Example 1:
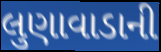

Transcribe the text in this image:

લુણાવાડાની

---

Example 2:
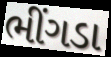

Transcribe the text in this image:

ભીંગડા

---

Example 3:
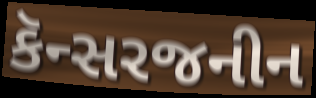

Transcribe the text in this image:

કૅન્સરજનીન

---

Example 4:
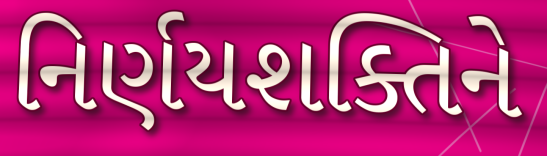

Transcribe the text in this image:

નિર્ણયશક્તિને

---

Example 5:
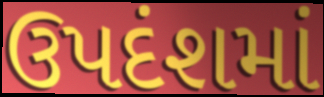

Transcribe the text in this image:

ઉપદંશમાં